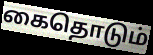
கைதொடும்